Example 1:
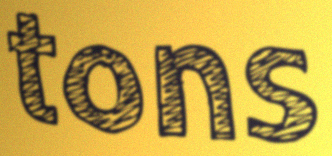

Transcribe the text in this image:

tons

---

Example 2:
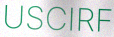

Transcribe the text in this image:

USCIRF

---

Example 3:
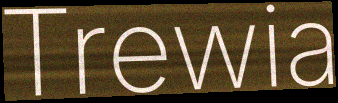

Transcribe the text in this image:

Trewia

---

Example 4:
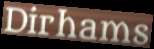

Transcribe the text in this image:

Dirhams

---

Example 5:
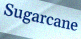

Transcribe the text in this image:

Sugarcane